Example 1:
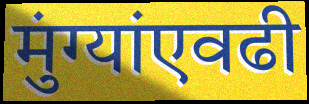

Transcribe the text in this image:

मुंग्यांएवढी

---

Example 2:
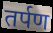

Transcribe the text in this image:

तर्पण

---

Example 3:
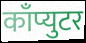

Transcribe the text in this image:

काँप्युटर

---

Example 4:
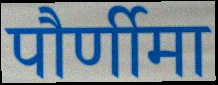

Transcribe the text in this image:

पौर्णीमा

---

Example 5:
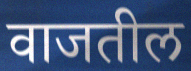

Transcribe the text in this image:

वाजतील